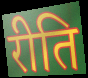
रीति